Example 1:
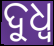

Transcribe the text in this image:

ଦୁଧ୍ଵ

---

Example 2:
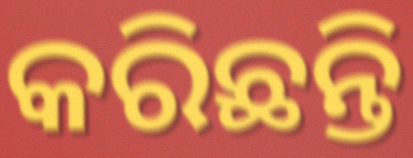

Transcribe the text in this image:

କରିଛନ୍ତି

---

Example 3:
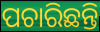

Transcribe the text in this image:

ପଚାରିଛନ୍ତି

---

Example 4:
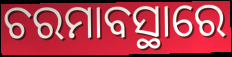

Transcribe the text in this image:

ଚରମାବସ୍ଥାରେ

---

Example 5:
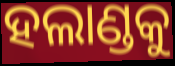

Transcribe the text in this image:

ହଲାଣ୍ଡକୁ